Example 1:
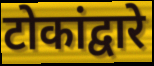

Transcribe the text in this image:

टोकांद्वारे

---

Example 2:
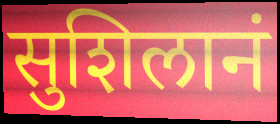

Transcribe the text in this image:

सुशिलानं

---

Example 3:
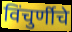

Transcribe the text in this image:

विंचुर्णीचे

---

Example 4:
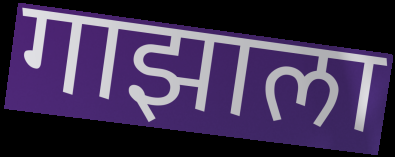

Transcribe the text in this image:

गाझाला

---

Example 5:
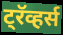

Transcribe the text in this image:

ट्रॅव्हर्स